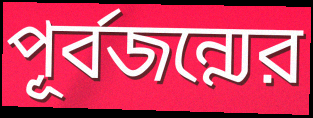
পূর্বজন্মের